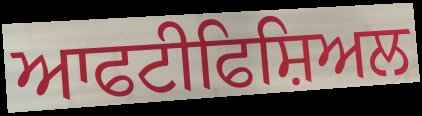
ਆਫਟੀਫਿਸ਼ਿਅਲ